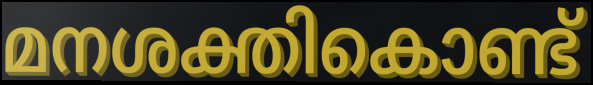
മനശക്തികൊണ്ട്